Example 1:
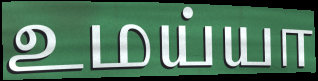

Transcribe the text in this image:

உமய்யா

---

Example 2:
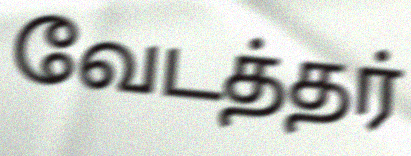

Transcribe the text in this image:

வேடத்தர்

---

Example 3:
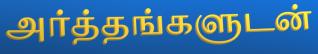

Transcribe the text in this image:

அர்த்தங்களுடன்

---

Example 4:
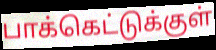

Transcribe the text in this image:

பாக்கெட்டுக்குள்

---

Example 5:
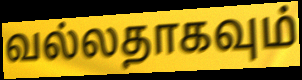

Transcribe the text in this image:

வல்லதாகவும்